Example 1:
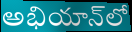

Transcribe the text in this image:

అభియాన్‌లో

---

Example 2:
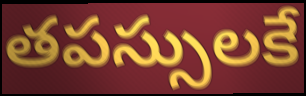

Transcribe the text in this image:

తపస్సులకే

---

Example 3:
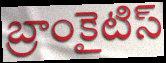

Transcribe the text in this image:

బ్రాంకైటిస్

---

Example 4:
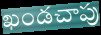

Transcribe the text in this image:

ఖండచాపు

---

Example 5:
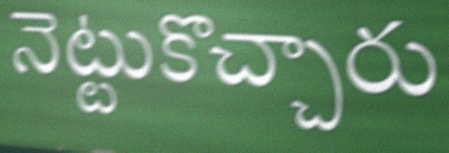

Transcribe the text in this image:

నెట్టుకొచ్చారు